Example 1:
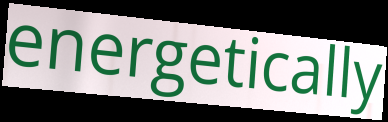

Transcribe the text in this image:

energetically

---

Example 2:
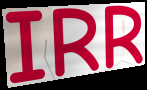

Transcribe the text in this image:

IRR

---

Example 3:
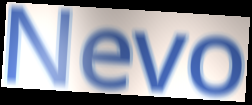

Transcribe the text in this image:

Nevo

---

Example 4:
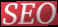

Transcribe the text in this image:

SEO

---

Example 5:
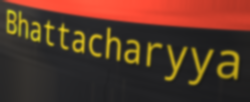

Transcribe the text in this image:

Bhattacharyya